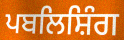
ਪਬਲਿਸ਼ਿੰਗ